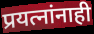
प्रयत्नांनाही